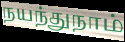
நயந்துநாம்